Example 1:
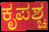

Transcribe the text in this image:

ಕೃಪಶ್ಚ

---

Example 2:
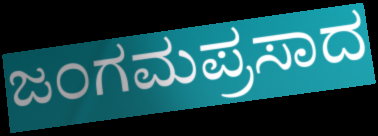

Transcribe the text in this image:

ಜಂಗಮಪ್ರಸಾದ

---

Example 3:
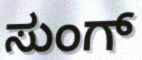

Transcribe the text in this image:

ಸುಂಗ್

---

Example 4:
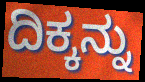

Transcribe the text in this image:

ದಿಕ್ಕನ್ನು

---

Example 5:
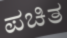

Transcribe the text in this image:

ಪಚಿತ